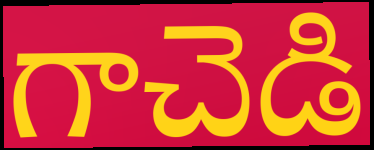
గాచెడి